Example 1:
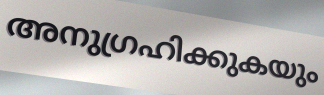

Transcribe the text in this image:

അനുഗ്രഹിക്കുകയും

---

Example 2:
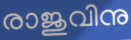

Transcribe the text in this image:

രാജുവിനു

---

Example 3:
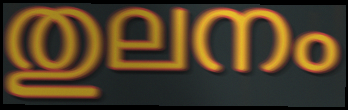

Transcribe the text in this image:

തുലനം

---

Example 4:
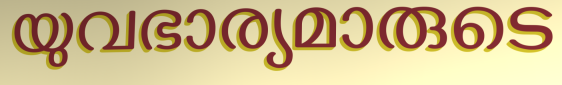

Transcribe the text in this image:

യുവഭാര്യമാരുടെ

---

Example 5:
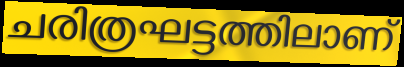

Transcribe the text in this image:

ചരിത്രഘട്ടത്തിലാണ്